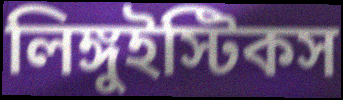
লিঙ্গুইস্টিকস